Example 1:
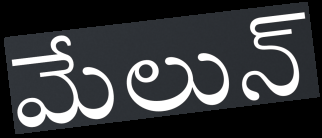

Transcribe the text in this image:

మేలున్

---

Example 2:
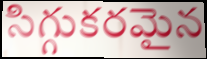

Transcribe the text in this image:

సిగ్గుకరమైన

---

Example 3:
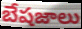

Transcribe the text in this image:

బేషజాలు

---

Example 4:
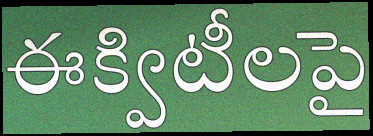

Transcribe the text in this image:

ఈక్విటీలపై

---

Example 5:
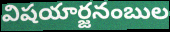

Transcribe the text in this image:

విషయార్జనంబుల